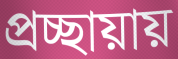
প্রচ্ছায়ায়